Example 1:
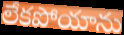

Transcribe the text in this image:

లేకపోయాను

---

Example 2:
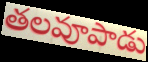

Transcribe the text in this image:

తలవూపాడు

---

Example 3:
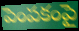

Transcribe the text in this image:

పెంపకంపై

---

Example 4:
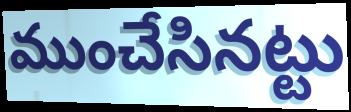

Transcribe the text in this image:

ముంచేసినట్టు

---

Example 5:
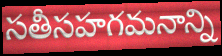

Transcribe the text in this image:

సతీసహగమనాన్ని